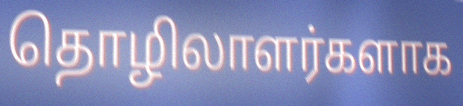
தொழிலாளர்களாக